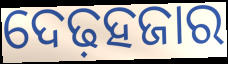
ଦେଢ଼ହଜାର